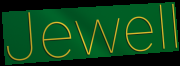
Jewell